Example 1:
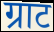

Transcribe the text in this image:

ग्राट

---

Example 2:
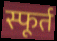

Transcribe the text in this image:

स्‍फूर्त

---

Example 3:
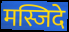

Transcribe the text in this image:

मस्जिदे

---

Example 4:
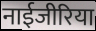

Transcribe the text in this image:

नाईजीरिया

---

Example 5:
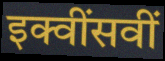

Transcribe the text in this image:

इक्वींसवीं